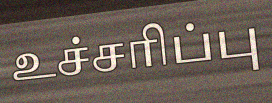
உச்சரிப்பு